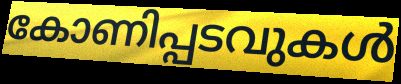
കോണിപ്പടവുകൾ